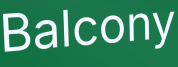
Balcony